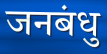
जनबंधु